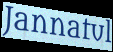
Jannatul